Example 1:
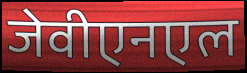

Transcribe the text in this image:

जेवीएनएल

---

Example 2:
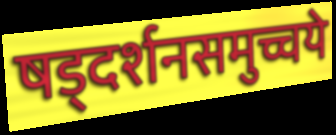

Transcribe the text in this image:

षड्दर्शनसमुच्चये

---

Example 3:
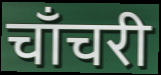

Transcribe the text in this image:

चाँचरी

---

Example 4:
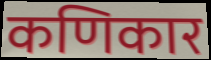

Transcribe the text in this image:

कणिकार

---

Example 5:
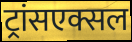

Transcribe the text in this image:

ट्रांसएक्सल